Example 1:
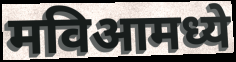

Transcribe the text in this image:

मविआमध्ये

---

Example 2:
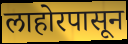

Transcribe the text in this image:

लाहोरपासून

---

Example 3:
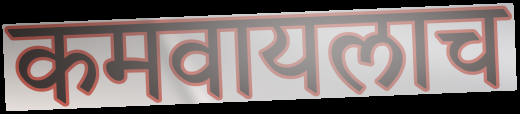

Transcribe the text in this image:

कमवायलाच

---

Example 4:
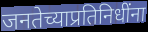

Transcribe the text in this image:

जनतेच्याप्रतिनिधींना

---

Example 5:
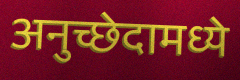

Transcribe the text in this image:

अनुच्छेदामध्ये